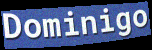
Dominigo